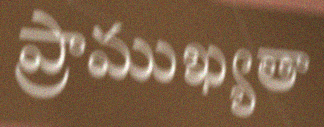
ప్రాముఖ్యతా